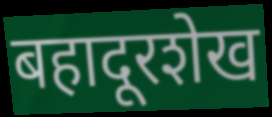
बहादूरशेख